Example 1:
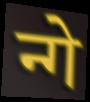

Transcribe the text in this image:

न्गे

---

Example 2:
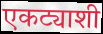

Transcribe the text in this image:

एकट्याशी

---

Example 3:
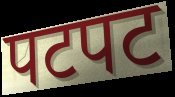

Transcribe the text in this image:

पटपट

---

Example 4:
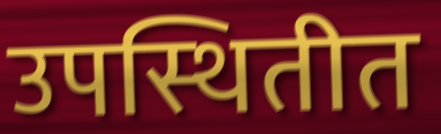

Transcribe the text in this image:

उपस्थितीत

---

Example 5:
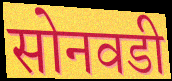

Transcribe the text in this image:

सोनवडी